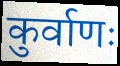
कुर्वाणः